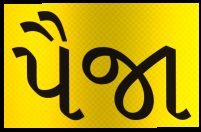
પૈજા